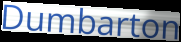
Dumbarton